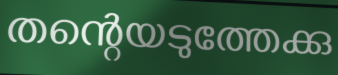
തന്റെയടുത്തേക്കു